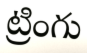
ట్రింగు